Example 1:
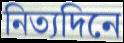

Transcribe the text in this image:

নিত্যদিনে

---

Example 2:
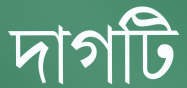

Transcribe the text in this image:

দাগটি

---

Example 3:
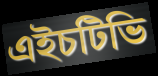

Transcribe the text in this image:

এইচটিভি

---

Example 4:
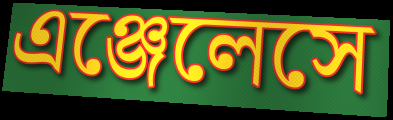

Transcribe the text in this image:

এঞ্জেলেসে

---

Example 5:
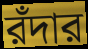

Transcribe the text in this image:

রঁদার